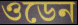
ওডেন